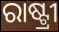
ରାଷ୍ଟ୍ରୀ